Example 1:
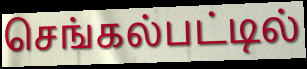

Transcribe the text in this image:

செங்கல்பட்டில்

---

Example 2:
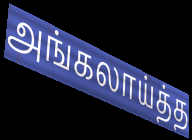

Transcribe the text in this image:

அங்கலாய்த்த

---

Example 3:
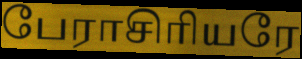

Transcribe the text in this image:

பேராசிரியரே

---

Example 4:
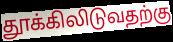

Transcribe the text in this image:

தூக்கிலிடுவதற்கு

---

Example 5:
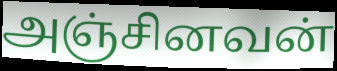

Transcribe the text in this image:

அஞ்சினவன்